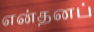
என்தனப்